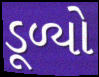
ડૂળ્યો